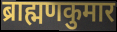
ब्राह्मणकुमार